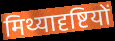
मिथ्यादृष्टियों